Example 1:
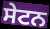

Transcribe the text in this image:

ਸੇਟਨ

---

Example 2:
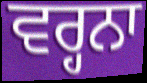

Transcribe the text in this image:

ਵਰ੍ਹਨਾ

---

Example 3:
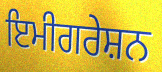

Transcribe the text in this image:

ਇਮੀਗਰੇਸ਼ਨ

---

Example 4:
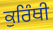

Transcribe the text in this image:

ਕੁਰਿੰਥੀ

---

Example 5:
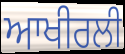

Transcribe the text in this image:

ਆਖੀਰਲੀ